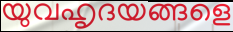
യുവഹൃദയങ്ങളെ